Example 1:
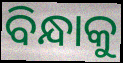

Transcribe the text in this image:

ବିନ୍ଧାକୁ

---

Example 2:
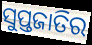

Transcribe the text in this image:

ସୁପ୍ତଜାତିର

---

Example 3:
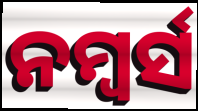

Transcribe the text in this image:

ନମ୍ୱର୍ସ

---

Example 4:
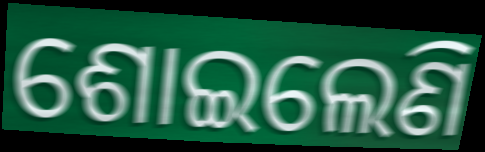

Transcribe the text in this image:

ଶୋଇଲେଣି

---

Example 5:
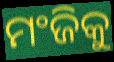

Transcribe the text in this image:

ମଂଜିକୁ